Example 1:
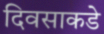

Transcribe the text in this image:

दिवसाकडे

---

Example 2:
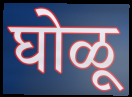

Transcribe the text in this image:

घोळू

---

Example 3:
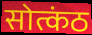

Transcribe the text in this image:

सोत्कंठ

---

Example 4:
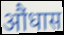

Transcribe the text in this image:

औंधास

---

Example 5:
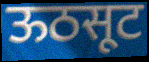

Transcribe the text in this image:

ऊठसूट